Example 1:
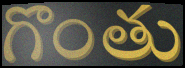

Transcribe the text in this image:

గొంతు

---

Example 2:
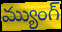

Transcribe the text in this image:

మ్యుంగ్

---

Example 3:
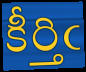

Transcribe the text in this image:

కీర్తిఁ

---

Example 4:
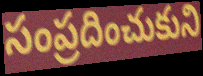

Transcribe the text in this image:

సంప్రదించుకుని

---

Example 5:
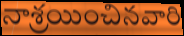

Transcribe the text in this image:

నాశ్రయించినవారి